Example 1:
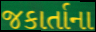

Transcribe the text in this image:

જકાર્તાના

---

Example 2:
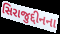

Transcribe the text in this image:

સિરાજુદ્દીનના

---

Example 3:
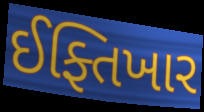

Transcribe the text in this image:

ઈફ્તિખાર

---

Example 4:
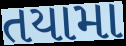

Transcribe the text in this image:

તયામા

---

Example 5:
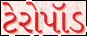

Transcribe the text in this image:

ટેરોપૉડ